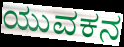
ಯುವಕನ